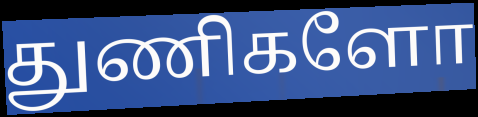
துணிகளோ